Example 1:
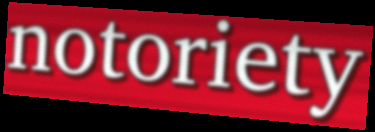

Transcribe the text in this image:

notoriety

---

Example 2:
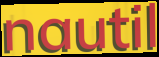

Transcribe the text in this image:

nautil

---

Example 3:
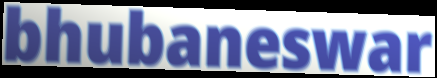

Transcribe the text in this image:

bhubaneswar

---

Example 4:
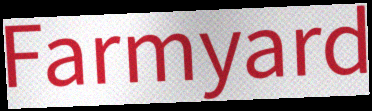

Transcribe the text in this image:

Farmyard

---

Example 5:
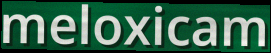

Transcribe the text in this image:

meloxicam